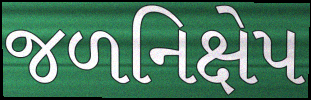
જળનિક્ષેપ